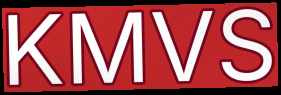
KMVS